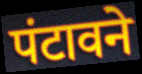
पंटावने